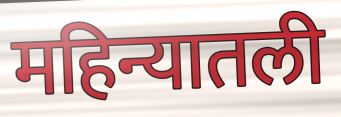
महिन्यातली